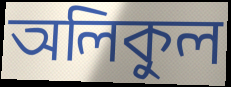
অলিকুল